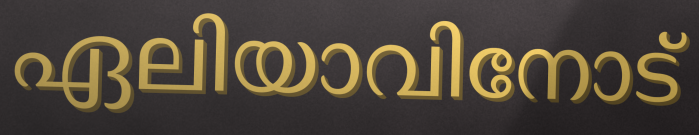
ഏലിയാവിനോട്